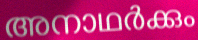
അനാഥർക്കും